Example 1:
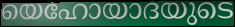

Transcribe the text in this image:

യെഹോയാദയുടെ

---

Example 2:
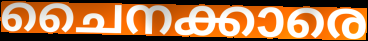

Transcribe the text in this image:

ചൈനക്കാരെ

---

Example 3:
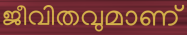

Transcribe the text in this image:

ജീവിതവുമാണ്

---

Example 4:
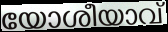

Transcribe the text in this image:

യോശീയാവ്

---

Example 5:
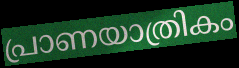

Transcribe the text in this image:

പ്രാണയാത്രികം